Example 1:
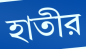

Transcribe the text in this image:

হাতীর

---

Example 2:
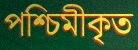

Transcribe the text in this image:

পশ্চিমীকৃত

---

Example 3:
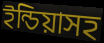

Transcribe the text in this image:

ইন্ডিয়াসহ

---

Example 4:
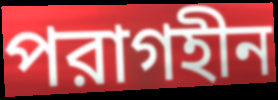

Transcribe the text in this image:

পরাগহীন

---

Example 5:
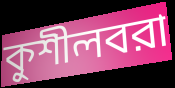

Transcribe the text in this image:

কুশীলবরা